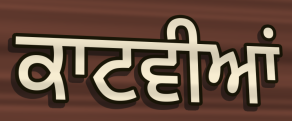
ਕਾਟਵੀਆਂ